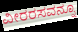
ವೀರರಸವನ್ನೂ